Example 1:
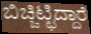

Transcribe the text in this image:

ಬಿಚ್ಚಿಟ್ಟಿದ್ದಾರೆ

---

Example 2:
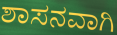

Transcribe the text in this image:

ಶಾಸನವಾಗಿ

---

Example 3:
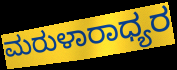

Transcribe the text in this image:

ಮರುಳಾರಾಧ್ಯರ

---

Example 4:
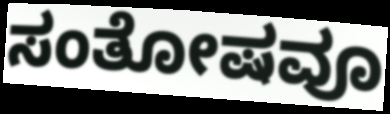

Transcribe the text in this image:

ಸಂತೋಷವೂ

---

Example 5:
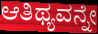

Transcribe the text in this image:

ಆತಿಥ್ಯವನ್ನೇ